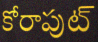
కోరాపుట్